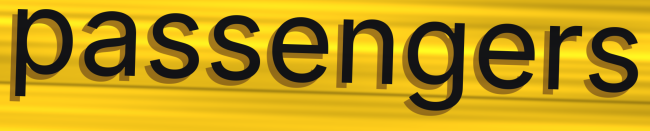
passengers